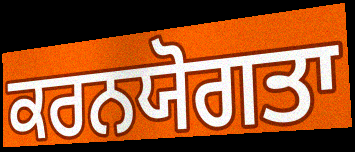
ਕਰਨਯੋਗਤਾ